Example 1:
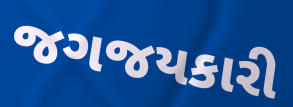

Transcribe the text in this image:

જગજયકારી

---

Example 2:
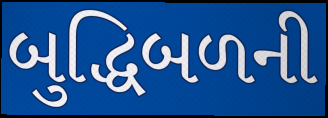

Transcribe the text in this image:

બુદ્ધિબળની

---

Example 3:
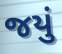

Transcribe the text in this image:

જયું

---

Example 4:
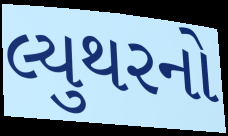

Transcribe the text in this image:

લ્યુથરનો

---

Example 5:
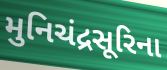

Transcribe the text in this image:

મુનિચંદ્રસૂરિના